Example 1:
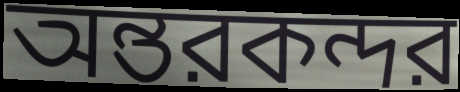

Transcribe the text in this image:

অন্তরকন্দর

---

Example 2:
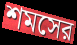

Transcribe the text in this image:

শমসের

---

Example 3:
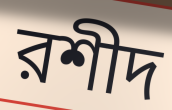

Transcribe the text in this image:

রশীদ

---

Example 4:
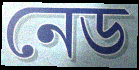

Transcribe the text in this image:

নেড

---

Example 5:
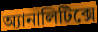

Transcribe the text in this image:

অ্যানালিটিক্সে